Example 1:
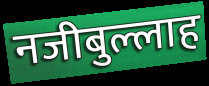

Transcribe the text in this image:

नजीबुल्लाह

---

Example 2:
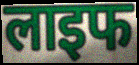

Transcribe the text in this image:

लाइफ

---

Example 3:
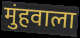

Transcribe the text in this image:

मुंहवाला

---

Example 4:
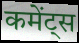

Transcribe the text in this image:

कमेंट्स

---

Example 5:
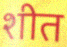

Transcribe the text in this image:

शीत